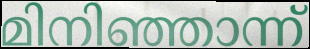
മിനിഞ്ഞാന്ന്